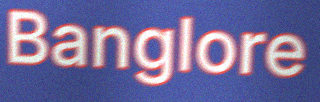
Banglore